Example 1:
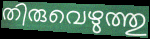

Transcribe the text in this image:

തിരുവെഴുത്തു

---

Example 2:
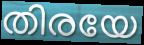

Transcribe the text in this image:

തിരയേ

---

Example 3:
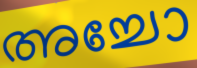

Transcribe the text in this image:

അച്ചോ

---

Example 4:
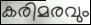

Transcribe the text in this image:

കരിമരവും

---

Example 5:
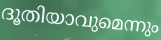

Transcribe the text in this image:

ദൂതിയാവുമെന്നും